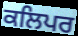
ਕਲਿਪਰ